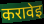
करावेइ